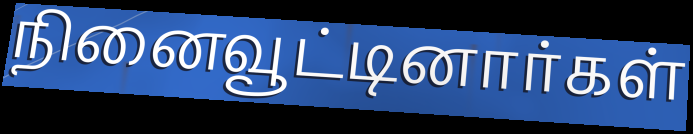
நினைவூட்டினார்கள்